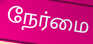
நேர்மை